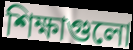
শিক্ষাগুলো